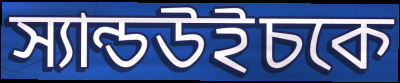
স্যান্ডউইচকে